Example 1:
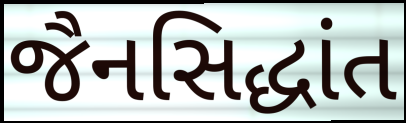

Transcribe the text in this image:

જૈનસિદ્ધાંત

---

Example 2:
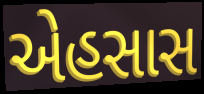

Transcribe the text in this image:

એહસાસ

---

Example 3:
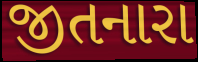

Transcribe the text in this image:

જીતનારા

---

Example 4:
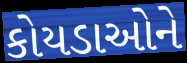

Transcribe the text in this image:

કોયડાઓને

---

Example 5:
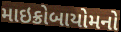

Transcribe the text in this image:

માઇક્રોબાયોમનો